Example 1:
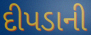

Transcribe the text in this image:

દીપડાની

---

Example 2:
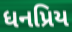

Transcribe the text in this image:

ધનપ્રિય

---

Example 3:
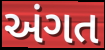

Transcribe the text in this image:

અંગત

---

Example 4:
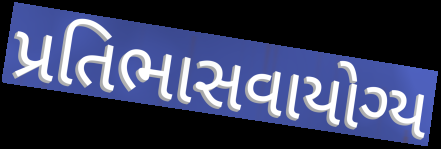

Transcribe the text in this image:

પ્રતિભાસવાયોગ્ય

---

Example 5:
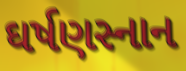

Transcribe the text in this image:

ઘર્ષણસ્નાન